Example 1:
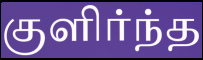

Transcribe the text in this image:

குளிர்ந்த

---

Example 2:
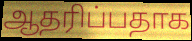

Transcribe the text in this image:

ஆதரிப்பதாக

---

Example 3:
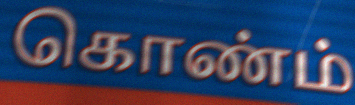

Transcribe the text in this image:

கொண்ம்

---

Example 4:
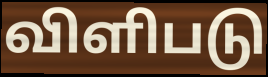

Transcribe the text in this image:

விளிபடு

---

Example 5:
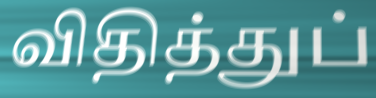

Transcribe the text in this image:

விதித்துப்